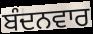
ਬੰਦਨਵਾਰ